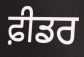
ਫ਼ੀਡਰ